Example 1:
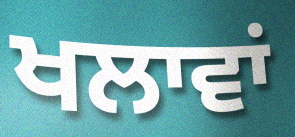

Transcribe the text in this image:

ਖਲਾਵਾਂ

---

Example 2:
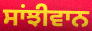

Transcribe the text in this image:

ਸਾਂਝੀਵਾਨ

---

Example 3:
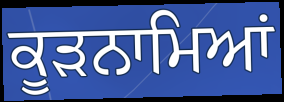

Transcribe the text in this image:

ਕੂੜਨਾਮਿਆਂ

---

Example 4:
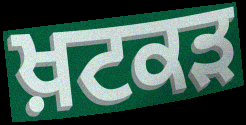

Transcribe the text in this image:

ਖ਼ਟਕੜ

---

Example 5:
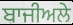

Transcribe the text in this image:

ਬਾਜੀਅਲੇ